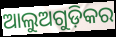
ଆଲୁଅଗୁଡ଼ିକର